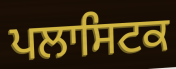
ਪਲਾਸਿਟਕ